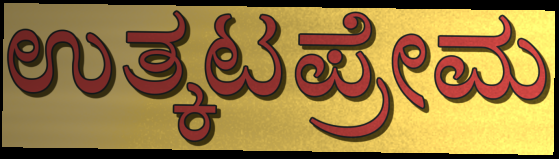
ಉತ್ಕಟಪ್ರೇಮ